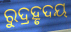
ରୁଦ୍ରହୃଦୟ